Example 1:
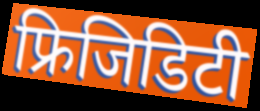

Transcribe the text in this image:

फ्रिजिडिटी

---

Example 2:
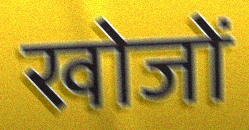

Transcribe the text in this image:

खोजों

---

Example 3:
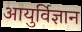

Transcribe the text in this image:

आयुर्विज्ञान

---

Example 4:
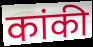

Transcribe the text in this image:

कांकी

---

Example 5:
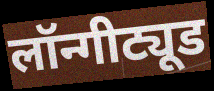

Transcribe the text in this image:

लॉन्गीट्यूड